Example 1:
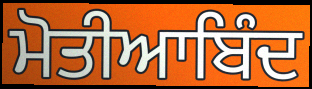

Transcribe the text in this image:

ਮੋਤੀਆਬਿੰਦ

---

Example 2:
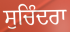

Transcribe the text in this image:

ਸੁਚਿੰਦਰਾ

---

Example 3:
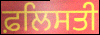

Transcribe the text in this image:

ਫ਼ਲਿਸਤੀ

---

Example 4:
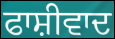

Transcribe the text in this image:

ਫਾਸ਼ੀਵਾਦ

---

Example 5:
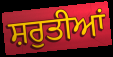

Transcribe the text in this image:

ਸ਼ਰੁਤੀਆਂ